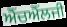
ਐੱਚਐੱਲਜੀ